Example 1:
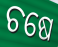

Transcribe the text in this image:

ଚଷେ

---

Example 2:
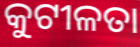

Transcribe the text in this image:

କୁଟୀଳତା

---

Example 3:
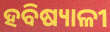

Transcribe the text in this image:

ହବିଷ୍ୟାଳୀ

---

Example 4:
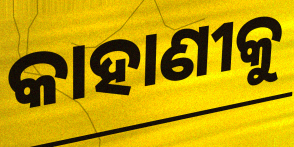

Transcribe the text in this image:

କାହାଣୀକୁ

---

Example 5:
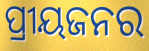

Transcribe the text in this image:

ପ୍ରୀୟଜନର